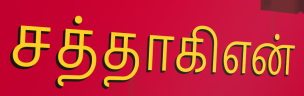
சத்தாகிஎன்